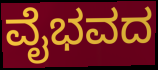
ವೈಭವದ